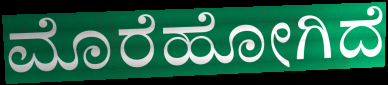
ಮೊರೆಹೋಗಿದೆ